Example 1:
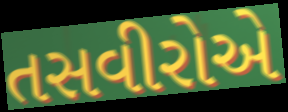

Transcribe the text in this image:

તસવીરોએ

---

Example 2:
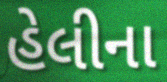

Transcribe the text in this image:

હેલીના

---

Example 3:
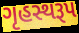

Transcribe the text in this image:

ગૃહસ્થરૂપ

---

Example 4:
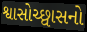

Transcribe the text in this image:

શ્વાસોચ્છ્વાસનો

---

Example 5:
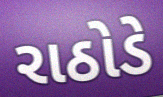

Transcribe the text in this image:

રાઠોડે